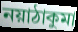
নয়াঠাকুমা